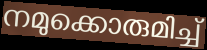
നമുക്കൊരുമിച്ച്